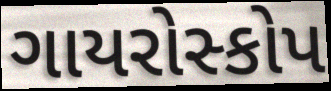
ગાયરોસ્કોપ